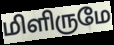
மிளிருமே